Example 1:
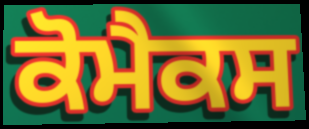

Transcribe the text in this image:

ਕੋਮੈਕਸ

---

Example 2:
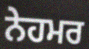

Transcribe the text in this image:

ਨੇਹਮਰ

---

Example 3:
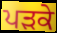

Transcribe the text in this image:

ਪੜਕੇ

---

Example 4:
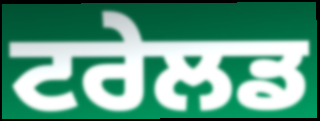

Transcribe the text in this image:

ਟਰੇਲਡ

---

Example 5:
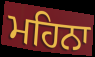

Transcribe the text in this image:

ਮਹਿਨਾ